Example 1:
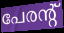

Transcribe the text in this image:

പേരന്റ്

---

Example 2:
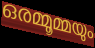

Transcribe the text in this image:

ഒരമ്മൂമ്മയും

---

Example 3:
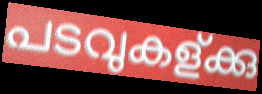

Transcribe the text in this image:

പടവുകള്ക്കു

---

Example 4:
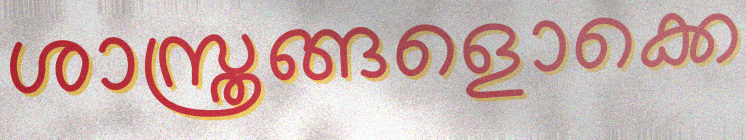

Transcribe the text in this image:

ശാസ്ത്രങ്ങളൊക്കെ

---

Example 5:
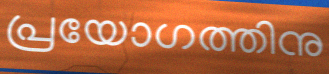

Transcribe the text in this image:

പ്രയോഗത്തിനു